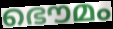
ഭൌമം